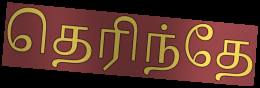
தெரிந்தே